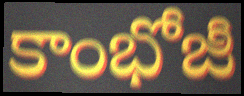
కాంభోజీ